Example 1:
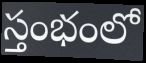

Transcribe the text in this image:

స్తంభంలో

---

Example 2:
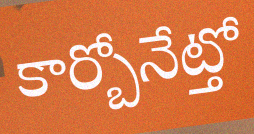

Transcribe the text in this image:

కార్బోనేట్తో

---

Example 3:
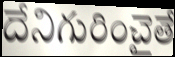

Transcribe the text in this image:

దేనిగురించైతే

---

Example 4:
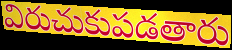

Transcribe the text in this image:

విరుచుకుపడతారు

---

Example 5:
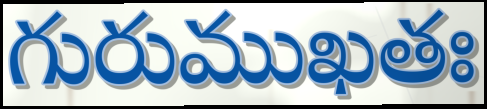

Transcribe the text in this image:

గురుముఖతః